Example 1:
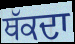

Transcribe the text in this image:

ਥੱਕਦਾ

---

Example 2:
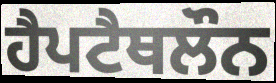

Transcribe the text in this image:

ਹੈਪਟੈਥਲੌਨ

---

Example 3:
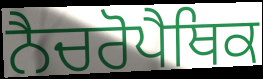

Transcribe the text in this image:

ਨੈਚਰੋਪੈਥਿਕ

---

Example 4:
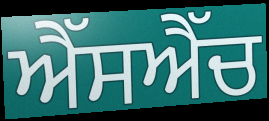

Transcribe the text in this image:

ਐੱਸਐੱਚ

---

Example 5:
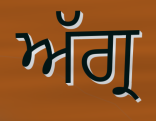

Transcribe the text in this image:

ਅੱਗ੍ਰ